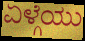
ಏಳ್ಗೆಯು